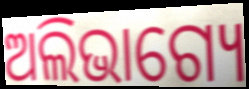
ଅଲିଭାଗ୍ୟେ